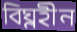
বিঘ্নহীন